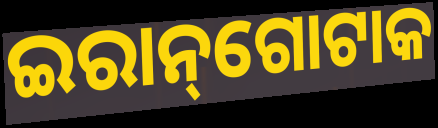
ଇରାନ୍‌ଗୋଟାକ